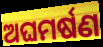
ଅଘମର୍ଷଣ